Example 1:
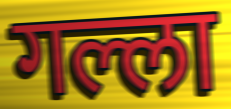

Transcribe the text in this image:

गल्ला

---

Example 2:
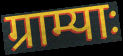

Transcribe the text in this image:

ग्राम्याः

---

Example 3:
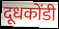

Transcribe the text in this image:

दूधकोंडी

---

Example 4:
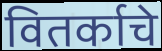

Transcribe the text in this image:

वितर्काचे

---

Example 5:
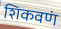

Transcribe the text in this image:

शिकवणं